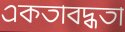
একতাবদ্ধতা